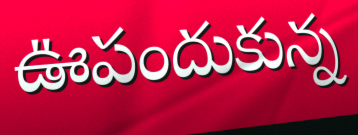
ఊపందుకున్న